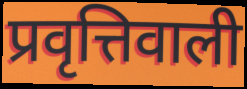
प्रवृत्तिवाली